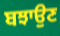
ਬਝਾਉਣ